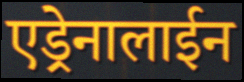
एड्रेनालाईन